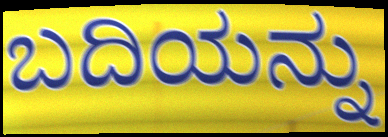
ಬದಿಯನ್ನು